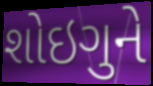
શોઇગુને